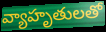
వ్యాహృతులతో